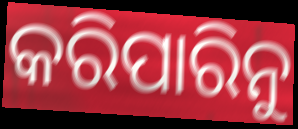
କରିପାରିନୁ